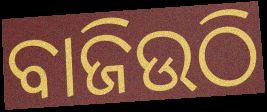
ବାଜିଉଠି